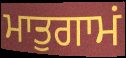
ਮਾਤੁਗਾਮਂ